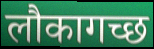
लौकागच्छ